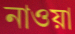
নাওয়া